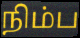
நிம்ப